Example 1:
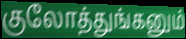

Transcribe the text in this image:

குலோத்துங்கனும்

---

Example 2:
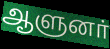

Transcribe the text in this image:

ஆளுனர்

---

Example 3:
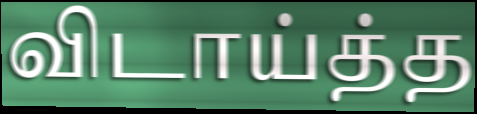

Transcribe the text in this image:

விடாய்த்த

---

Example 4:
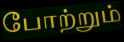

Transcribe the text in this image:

போற்றும்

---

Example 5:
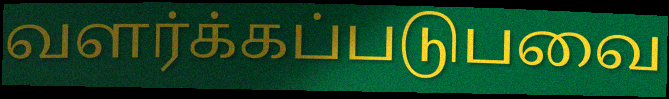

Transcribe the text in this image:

வளர்க்கப்படுபவை